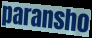
paransho